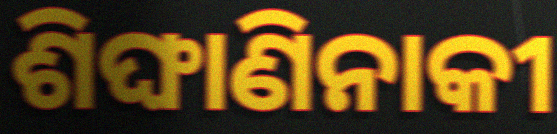
ଶିଙ୍ଘାଣିନାକୀ